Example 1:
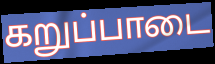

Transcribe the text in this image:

கறுப்பாடை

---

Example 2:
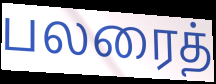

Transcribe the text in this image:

பலரைத்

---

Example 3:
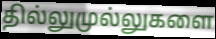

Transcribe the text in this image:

தில்லுமுல்லுகளை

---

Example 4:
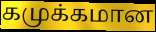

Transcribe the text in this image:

கமுக்கமான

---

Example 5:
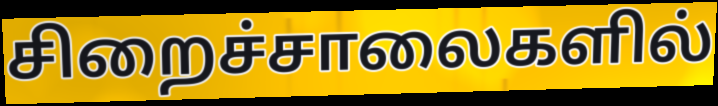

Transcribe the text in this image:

சிறைச்சாலைகளில்